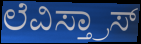
ಲೆವಿಸ್ತ್ರಾಸ್